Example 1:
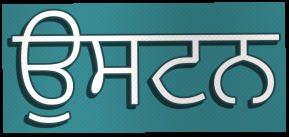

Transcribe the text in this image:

ਉਸਟਨ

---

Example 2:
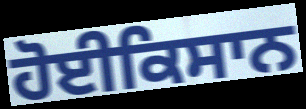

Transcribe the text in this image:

ਹੋਈਕਿਸਾਨ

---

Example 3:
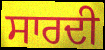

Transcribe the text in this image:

ਸਾਰਦੀ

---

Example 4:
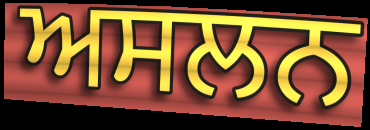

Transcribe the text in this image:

ਅਸਲਨ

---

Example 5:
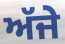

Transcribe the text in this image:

ਅੱਜੇ